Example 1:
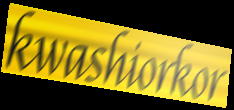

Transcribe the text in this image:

kwashiorkor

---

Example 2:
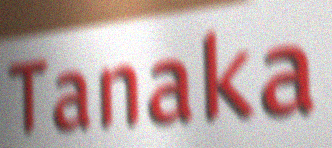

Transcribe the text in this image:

Tanaka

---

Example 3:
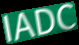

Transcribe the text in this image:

IADC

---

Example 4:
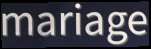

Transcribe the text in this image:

mariage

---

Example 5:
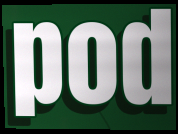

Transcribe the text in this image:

pod